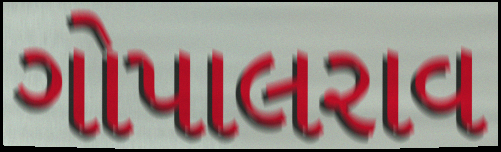
ગોપાલરાવ